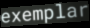
exemplar